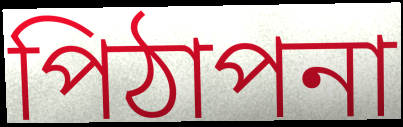
পিঠাপনা